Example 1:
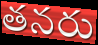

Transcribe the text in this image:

తనరు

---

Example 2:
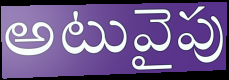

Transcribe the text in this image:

అటువైపు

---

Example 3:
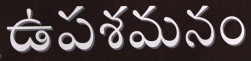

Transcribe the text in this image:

ఉపశమనం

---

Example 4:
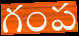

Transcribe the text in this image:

గంప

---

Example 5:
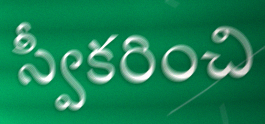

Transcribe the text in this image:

స్వీకరించి